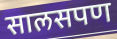
सालसपण